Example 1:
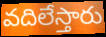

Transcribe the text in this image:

వదిలేస్తారు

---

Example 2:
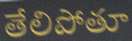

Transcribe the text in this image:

తేలిపోతూ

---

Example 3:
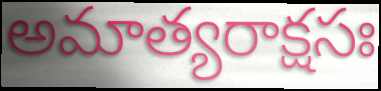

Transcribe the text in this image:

అమాత్యరాక్షసః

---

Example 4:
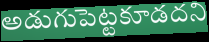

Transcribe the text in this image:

అడుగుపెట్టకూడదని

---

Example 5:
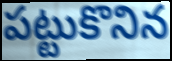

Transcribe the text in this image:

పట్టుకొనిన